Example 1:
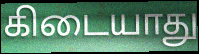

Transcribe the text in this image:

கிடையாது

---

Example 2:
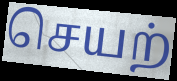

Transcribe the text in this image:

செயற்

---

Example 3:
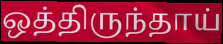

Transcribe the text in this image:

ஒத்திருந்தாய்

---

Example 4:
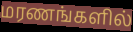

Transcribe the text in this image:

மரணங்களில்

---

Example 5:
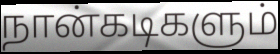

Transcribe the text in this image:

நான்கடிகளும்